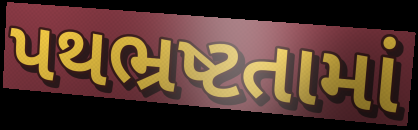
પથભ્રષ્ટતામાં